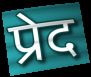
प्रेद